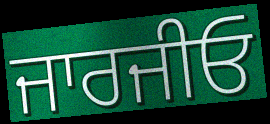
ਜਾਰਜੀਓ